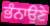
ਭੰਨਾਉਣੇ